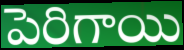
పెరిగాయి